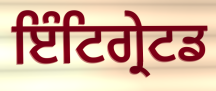
ਇੰਟਿਗ੍ਰੇਟਡ